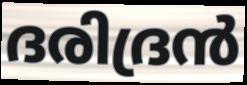
ദരിദ്രൻ